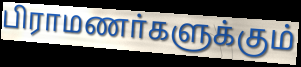
பிராமணர்களுக்கும்